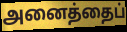
அனைத்தைப்